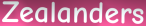
Zealanders